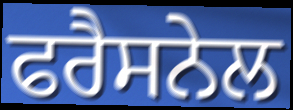
ਫਰੈਸਨੇਲ